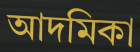
আদমিকা